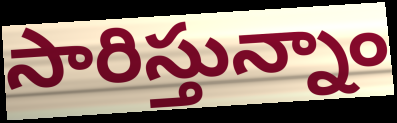
సారిస్తున్నాం